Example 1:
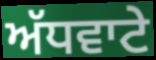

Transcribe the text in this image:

ਅੱਧਵਾਟੇ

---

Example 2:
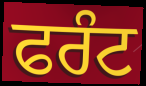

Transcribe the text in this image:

ਫਰੰਟ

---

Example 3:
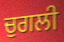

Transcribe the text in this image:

ਚੁਗਲੀ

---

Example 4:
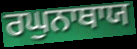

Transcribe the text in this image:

ਰਘੁਨਾਥਾਯ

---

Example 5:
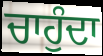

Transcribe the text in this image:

ਚਾਹੁੰਦਾ